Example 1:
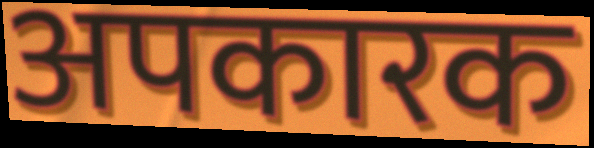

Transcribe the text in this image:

अपकारक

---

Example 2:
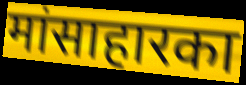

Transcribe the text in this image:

मांसाहारका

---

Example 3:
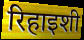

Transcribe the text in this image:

रिहाइशी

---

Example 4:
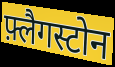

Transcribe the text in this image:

फ़्लैगस्टोन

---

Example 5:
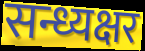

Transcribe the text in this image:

सन्ध्यक्षर